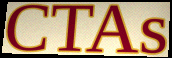
CTAs